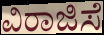
ವಿರಾಜಿಸೆ